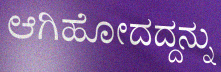
ಆಗಿಹೋದದ್ದನ್ನು